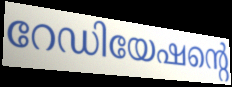
റേഡിയേഷന്റെ